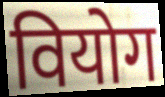
वियोग